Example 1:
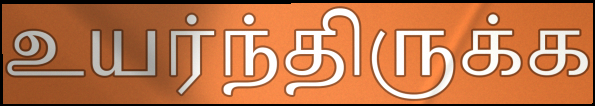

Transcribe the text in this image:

உயர்ந்திருக்க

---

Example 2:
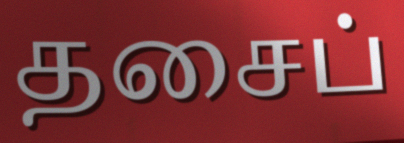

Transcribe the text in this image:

தசைப்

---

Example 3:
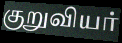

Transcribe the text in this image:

குறுவியர்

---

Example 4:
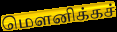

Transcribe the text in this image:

மௌனிக்கச்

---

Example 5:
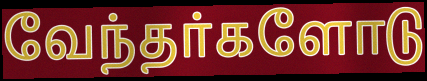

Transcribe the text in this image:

வேந்தர்களோடு